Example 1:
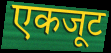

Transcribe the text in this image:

एकजूट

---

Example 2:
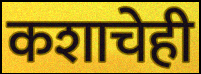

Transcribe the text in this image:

कशाचेही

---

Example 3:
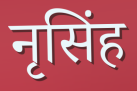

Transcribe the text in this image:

नृसिंह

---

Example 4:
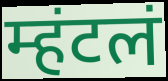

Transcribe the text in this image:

म्हंटलं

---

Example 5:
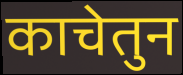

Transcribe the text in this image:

काचेतुन